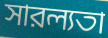
সারল্যতা